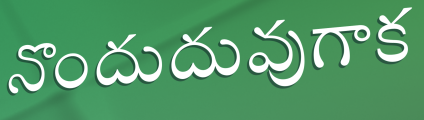
నొందుదువుగాక